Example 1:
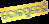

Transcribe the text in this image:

ଦୋଳପୁନେଇଁ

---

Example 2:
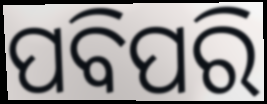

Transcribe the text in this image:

ପବିପରି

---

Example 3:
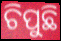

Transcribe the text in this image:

ଚିପୁଛି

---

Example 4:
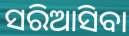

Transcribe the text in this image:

ସରିଆସିବା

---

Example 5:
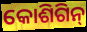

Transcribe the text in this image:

କୋଶିଗିନ୍